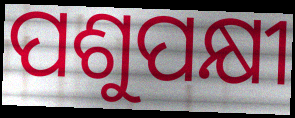
ପଶୁପକ୍ଷୀ